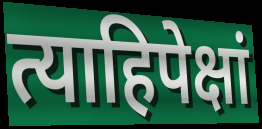
त्याहिपेक्षां